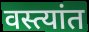
वस्त्यांत